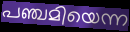
പഞ്ചമിയെന്ന